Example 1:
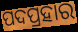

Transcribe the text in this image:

ପଦପ୍ରହାର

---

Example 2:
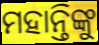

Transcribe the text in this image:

ମହାନ୍ତିଙ୍କୁ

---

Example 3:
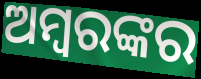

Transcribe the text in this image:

ଅମ୍ବରଙ୍କର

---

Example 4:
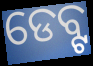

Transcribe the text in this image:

ଡେବ୍ଟ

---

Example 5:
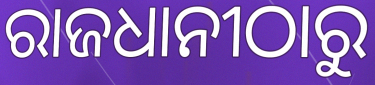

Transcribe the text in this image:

ରାଜଧାନୀଠାରୁ